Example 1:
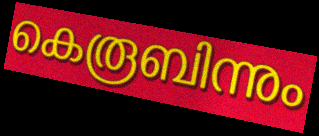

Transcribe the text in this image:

കെരൂബിന്നും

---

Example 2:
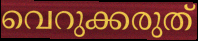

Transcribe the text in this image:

വെറുക്കരുത്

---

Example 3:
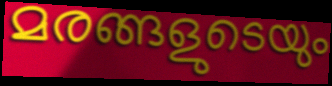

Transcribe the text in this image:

മരങ്ങളുടെയും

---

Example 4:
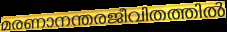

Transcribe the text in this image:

മരണാനന്തരജീവിതത്തിൽ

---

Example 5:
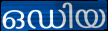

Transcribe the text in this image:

ഒഡിയ